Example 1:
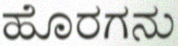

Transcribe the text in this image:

ಹೊರಗನು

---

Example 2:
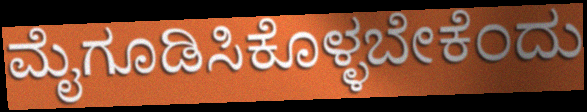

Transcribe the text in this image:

ಮೈಗೂಡಿಸಿಕೊಳ್ಳಬೇಕೆಂದು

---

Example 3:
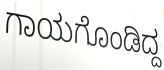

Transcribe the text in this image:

ಗಾಯಗೊಂಡಿದ್ದ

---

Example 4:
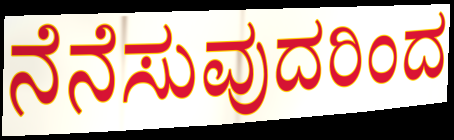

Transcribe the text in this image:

ನೆನೆಸುವುದರಿಂದ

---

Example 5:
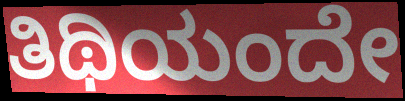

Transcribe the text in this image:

ತಿಥಿಯಂದೇ